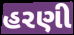
હરણી